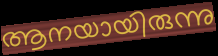
ആനയായിരുന്നു